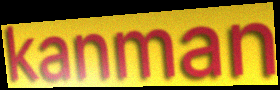
kanman